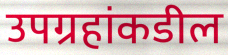
उपग्रहांकडील